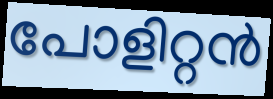
പോളിറ്റൻ